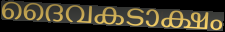
ദൈവകടാക്ഷം